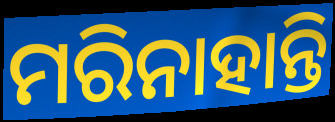
ମରିନାହାନ୍ତି